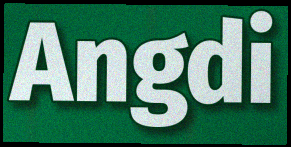
Angdi